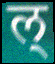
ल्